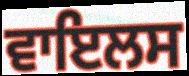
ਵਾਇਲਸ